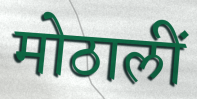
मोठालीं